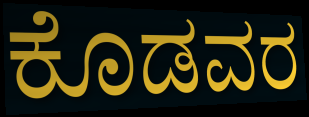
ಕೊಡವರ